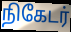
நிகேடர்